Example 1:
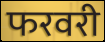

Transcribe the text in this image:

फरवरी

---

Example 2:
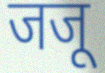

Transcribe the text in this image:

जजू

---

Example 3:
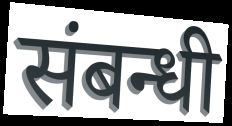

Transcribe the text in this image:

संबन्धी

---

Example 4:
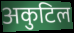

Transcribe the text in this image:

अकुटिल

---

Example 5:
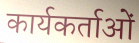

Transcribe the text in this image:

कार्यकर्ताओं